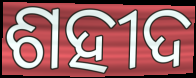
ଶହୀଦ